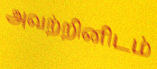
அவற்றினிடம்